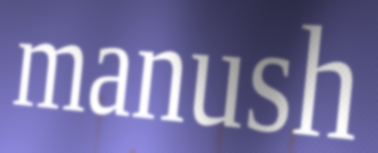
manush